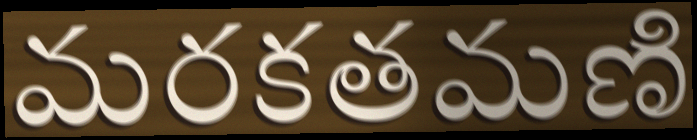
మరకతమణి